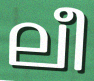
ലീ